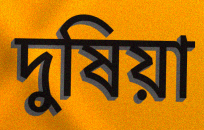
দুষিয়া